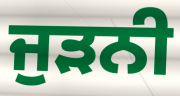
ਜੁੜਨੀ